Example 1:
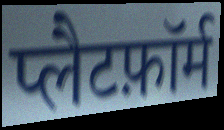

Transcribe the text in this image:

प्लैटफ़ॉर्म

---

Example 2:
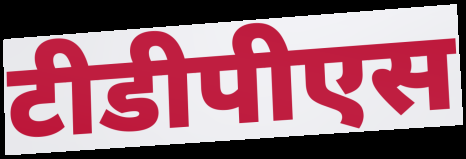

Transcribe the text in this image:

टीडीपीएस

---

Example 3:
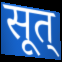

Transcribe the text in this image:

सूत्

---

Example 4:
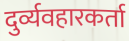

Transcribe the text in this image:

दुर्व्यवहारकर्ता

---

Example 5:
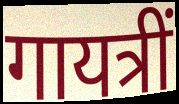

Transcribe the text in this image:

गायत्रीं